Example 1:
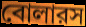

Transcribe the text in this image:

বোলারস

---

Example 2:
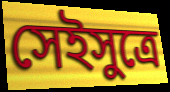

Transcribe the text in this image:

সেইসুত্রে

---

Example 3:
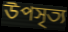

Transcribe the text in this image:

উপসৃত্য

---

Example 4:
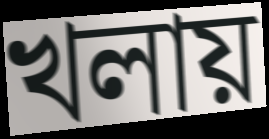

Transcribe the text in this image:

খলায়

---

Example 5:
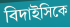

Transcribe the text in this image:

বিদাইসিকে